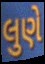
લુણે